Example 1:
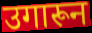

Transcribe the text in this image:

उगारून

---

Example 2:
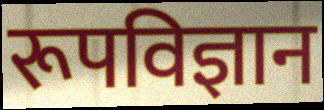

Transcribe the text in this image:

रूपविज्ञान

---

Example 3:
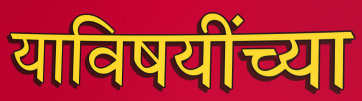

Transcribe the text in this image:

याविषयींच्या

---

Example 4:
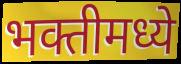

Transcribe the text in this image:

भक्तीमध्ये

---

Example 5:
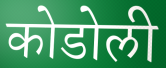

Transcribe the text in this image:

कोडोली